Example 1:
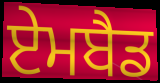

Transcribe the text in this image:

ਏਮਬੈਡ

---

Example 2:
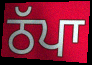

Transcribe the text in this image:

ਠੱਪਾ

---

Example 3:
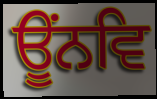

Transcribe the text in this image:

ਊਂਨਵਿ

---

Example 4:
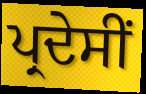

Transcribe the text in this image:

ਪ੍ਰਦੇਸੀਂ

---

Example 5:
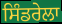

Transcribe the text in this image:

ਸਿੰਡਰੇਲਾ